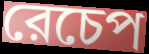
রেচেপ